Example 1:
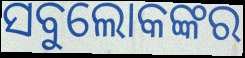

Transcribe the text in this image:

ସବୁଲୋକଙ୍କର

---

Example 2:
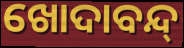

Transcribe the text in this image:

ଖୋଦାବନ୍ଦ୍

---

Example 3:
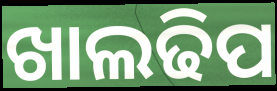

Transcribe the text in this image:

ଖାଲଢିପ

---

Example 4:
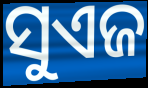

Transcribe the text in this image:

ସୁଏଜ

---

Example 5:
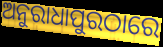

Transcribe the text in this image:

ଅନୁରାଧାପୁରଠାରେ